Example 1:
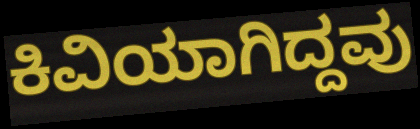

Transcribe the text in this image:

ಕಿವಿಯಾಗಿದ್ದವು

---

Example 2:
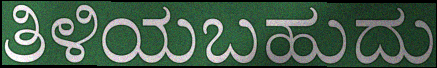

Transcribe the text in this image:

ತಿಳಿಯಬಹುದು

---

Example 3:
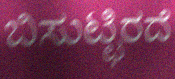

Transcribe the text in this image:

ಬಿಸುಟ್ಟಿರದೆ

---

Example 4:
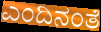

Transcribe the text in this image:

ಎಂದಿನಂತೆ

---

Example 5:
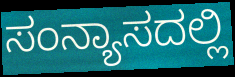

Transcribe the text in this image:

ಸಂನ್ಯಾಸದಲ್ಲಿ